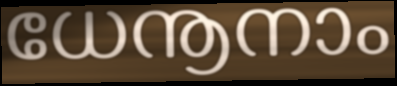
ധേനൂനാം